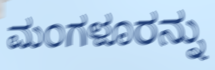
ಮಂಗಳೂರನ್ನು